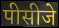
पीसीजे